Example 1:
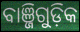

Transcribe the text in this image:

ବାଞ୍ଜିଗୁଡ଼ିକ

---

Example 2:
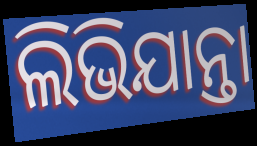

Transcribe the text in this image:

ଲିଭିଯାନ୍ତା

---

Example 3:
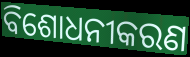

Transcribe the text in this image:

ବିଶୋଧନୀକରଣ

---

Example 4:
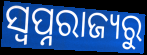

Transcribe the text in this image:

ସ୍ୱପ୍ନରାଜ୍ୟରୁ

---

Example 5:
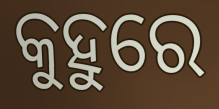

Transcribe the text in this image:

କୁହୁରେ